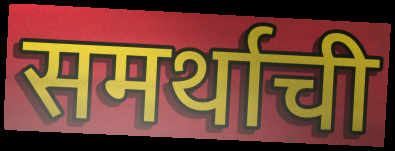
समर्थाची